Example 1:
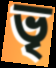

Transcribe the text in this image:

ভৃ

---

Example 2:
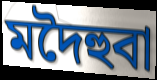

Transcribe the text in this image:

মদৈহুবা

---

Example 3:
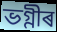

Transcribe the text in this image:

ভগ্নীৰ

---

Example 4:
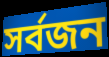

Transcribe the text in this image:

সৰ্বজন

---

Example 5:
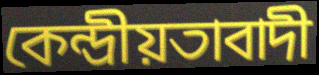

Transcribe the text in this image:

কেন্দ্ৰীয়তাবাদী